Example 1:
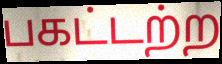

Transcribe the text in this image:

பகட்டற்ற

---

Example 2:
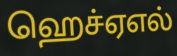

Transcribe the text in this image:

ஹெச்ஏஎல்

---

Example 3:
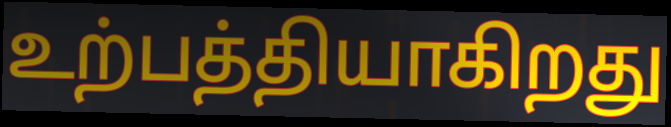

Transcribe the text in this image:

உற்பத்தியாகிறது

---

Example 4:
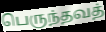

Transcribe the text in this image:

பெருந்தவத்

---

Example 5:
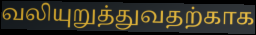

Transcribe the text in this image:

வலியுறுத்துவதற்காக